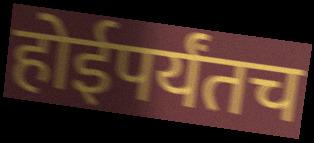
होईपर्यंतच